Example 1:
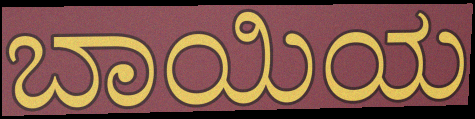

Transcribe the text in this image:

ಬಾಯಿಯ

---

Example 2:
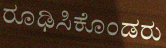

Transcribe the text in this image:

ರೂಢಿಸಿಕೊಂಡರು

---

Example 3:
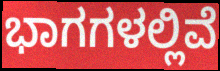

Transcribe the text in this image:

ಭಾಗಗಳಲ್ಲಿವೆ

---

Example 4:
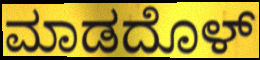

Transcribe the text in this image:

ಮಾಡದೊಳ್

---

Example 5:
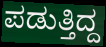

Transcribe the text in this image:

ಪಡುತ್ತಿದ್ದ